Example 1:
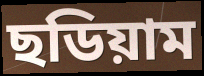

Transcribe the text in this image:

ছডিয়াম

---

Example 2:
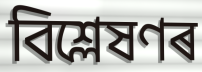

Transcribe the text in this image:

বিশ্লেষণৰ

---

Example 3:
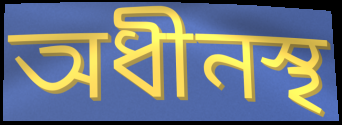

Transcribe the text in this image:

অধীনস্থ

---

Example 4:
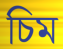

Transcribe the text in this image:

চিম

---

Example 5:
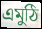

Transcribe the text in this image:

এমুঠি